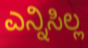
ಎನ್ನಿಸಿಲ್ಲ